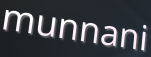
munnani